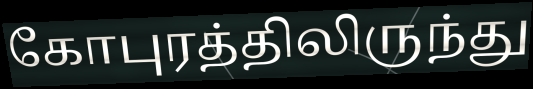
கோபுரத்திலிருந்து